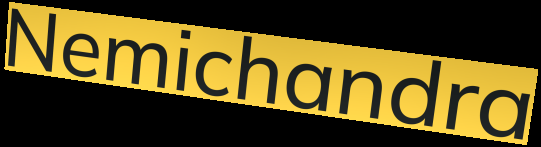
Nemichandra